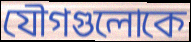
যৌগগুলোকে